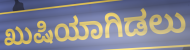
ಖುಷಿಯಾಗಿಡಲು